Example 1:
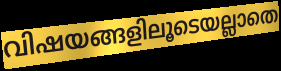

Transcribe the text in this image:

വിഷയങ്ങളിലൂടെയല്ലാതെ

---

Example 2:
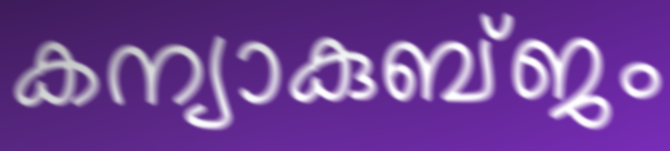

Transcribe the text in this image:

കന്യാകുബ്ജം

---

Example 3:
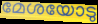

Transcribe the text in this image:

മേശയോടു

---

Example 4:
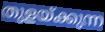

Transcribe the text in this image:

തുളയ്ക്കുന്ന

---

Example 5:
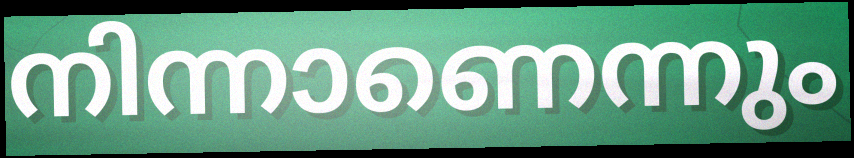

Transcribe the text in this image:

നിന്നാണെന്നും